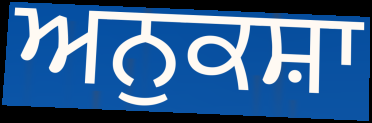
ਅਨੁਕਸ਼ਾ